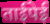
ताईपेई